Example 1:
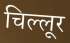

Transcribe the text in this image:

चिल्लूर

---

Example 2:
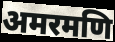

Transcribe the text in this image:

अमरमणि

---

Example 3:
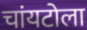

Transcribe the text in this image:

चांयटोला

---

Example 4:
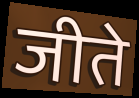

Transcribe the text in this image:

जीते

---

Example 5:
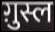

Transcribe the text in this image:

ग़ुस्ल